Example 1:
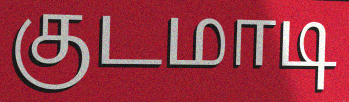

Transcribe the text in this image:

குடமாடி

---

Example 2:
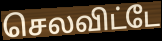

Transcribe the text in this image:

செலவிட்டே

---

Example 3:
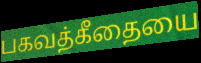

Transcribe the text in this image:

பகவத்கீதையை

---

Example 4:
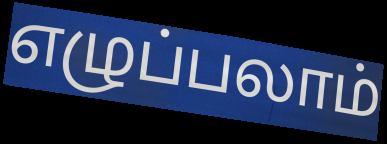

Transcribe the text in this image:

எழுப்பலாம்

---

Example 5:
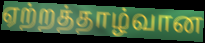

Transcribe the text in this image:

ஏற்றத்தாழ்வான